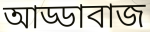
আড্ডাবাজ